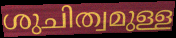
ശുചിത്വമുള്ള